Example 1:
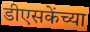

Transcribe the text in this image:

डीएसकेंच्या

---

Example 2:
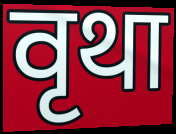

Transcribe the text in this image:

वृथा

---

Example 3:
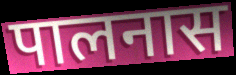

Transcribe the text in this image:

पालनास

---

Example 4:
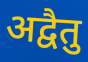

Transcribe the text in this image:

अद्वैतु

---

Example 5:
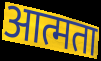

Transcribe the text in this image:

आत्मता